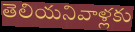
తెలియనివాళ్లకు